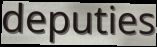
deputies